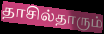
தாசில்தாரும்